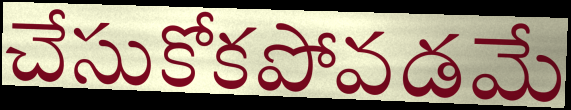
చేసుకోకపోవడమే